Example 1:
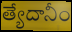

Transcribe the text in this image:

త్యేదానీం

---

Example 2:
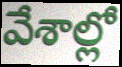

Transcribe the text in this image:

వేశాల్లో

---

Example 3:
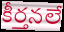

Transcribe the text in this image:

కీర్తనలే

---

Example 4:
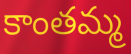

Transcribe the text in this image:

కాంతమ్మ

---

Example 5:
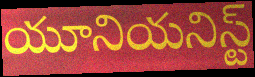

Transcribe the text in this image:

యూనియనిస్ట్